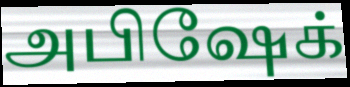
அபிஷேக்